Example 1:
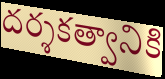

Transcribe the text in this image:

దర్శకత్వానికి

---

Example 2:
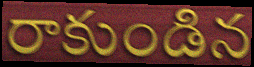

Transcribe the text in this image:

రాకుండిన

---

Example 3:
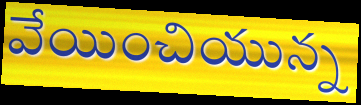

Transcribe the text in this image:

వేయించియున్న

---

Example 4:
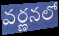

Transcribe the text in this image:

వర్ణనలో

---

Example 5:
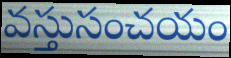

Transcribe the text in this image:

వస్తుసంచయం